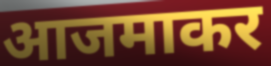
आजमाकर